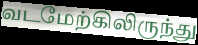
வடமேற்கிலிருந்து